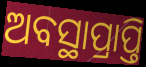
ଅବସ୍ଥାପ୍ରାପ୍ତି